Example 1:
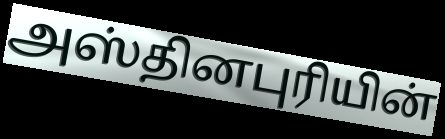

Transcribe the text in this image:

அஸ்தினபுரியின்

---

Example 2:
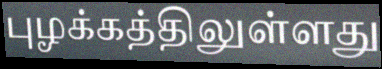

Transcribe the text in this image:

புழக்கத்திலுள்ளது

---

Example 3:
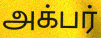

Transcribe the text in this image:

அக்பர்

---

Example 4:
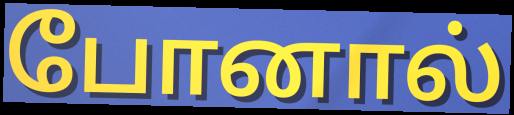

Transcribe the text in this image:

போனால்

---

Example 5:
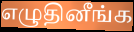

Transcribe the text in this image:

எழுதினீங்க